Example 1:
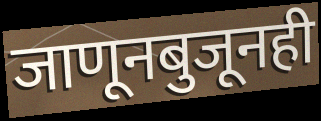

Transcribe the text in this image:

जाणूनबुजूनही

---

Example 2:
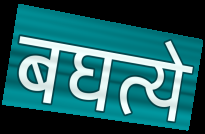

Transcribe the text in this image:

बघत्ये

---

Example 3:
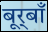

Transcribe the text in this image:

बूर्‌बाँ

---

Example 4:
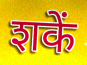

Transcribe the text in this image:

शकें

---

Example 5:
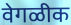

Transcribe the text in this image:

वेगळीक